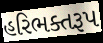
હરિભક્તરૂપ